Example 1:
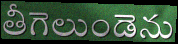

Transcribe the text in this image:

తీగెలుండెను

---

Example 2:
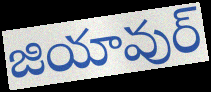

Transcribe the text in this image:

జియావుర్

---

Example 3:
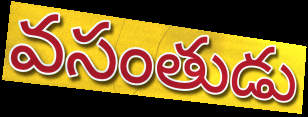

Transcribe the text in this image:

వసంతుడు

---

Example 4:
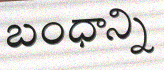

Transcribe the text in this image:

బంధాన్ని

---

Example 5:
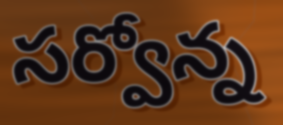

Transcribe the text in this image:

సర్వోన్న